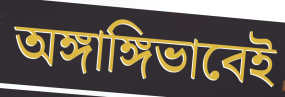
অঙ্গাঙ্গিভাবেই